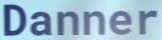
Danner